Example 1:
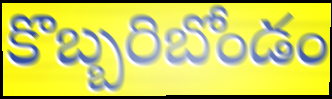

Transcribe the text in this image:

కొబ్బరిబోండం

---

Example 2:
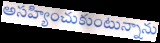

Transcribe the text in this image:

అసహ్యించుకుంటున్నాను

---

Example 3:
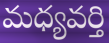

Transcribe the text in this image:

మధ్యవర్తి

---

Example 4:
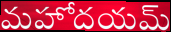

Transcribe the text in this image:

మహోదయమ్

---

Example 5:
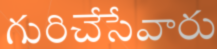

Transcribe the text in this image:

గురిచేసేవారు